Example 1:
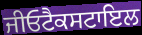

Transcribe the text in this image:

ਜੀਓਟੈਕਸਟਾਇਲ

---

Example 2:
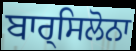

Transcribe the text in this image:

ਬਾਰ੍ਸਿਲੋਨਾ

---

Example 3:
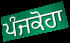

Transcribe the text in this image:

ਪੰਜਕੋਹਾ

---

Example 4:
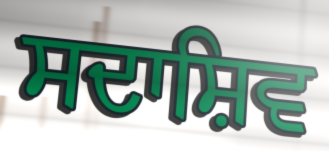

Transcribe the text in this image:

ਸਦਾਸ਼ਿਵ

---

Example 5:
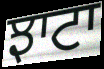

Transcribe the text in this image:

ਝਾਟਾ